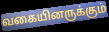
வகையினருக்கும்